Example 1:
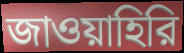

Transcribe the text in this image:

জাওয়াহিরি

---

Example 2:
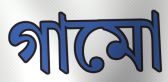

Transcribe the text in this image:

গামো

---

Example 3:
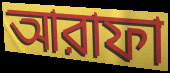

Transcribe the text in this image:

আরাফা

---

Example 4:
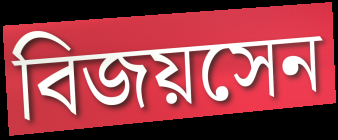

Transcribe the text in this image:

বিজয়সেন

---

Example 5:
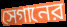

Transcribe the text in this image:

সেগানের